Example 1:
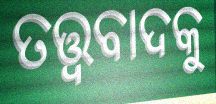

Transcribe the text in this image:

ତତ୍ତ୍ୱବାଦକୁ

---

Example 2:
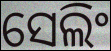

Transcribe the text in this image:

ସେଲିଂ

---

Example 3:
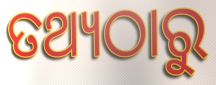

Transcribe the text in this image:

ତଥ୍ୟଠାରୁ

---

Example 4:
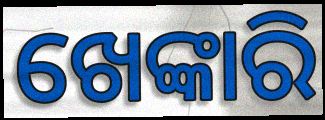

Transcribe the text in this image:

ଖେଙ୍କାରି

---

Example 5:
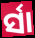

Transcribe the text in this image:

ର୍ସା